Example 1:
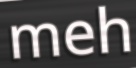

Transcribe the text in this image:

meh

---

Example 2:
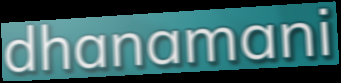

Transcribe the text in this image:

dhanamani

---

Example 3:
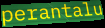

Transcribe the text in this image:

perantalu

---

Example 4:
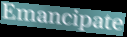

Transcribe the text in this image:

Emancipate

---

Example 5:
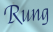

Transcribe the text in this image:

Rung